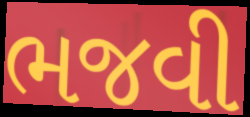
ભજવી